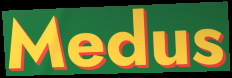
Medus